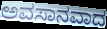
ಅವಸಾನವಾದ